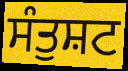
ਸੰਤੁਸ਼ਟ